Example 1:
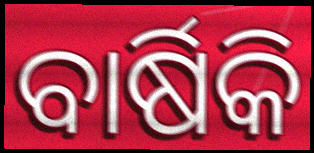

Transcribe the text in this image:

ବାର୍ଷିକି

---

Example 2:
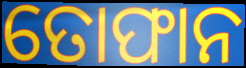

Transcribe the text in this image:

ତୋଫାନ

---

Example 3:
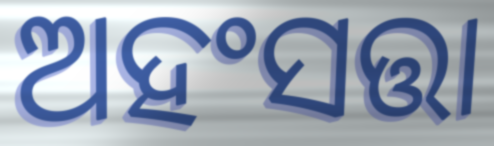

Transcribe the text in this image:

ଅହଂସତ୍ତା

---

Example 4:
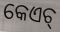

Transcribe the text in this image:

କେଏଚ୍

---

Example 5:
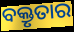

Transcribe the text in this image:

ବକ୍ତୃତାର